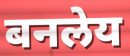
बनलेय